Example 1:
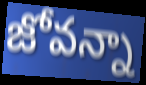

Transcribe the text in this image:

జోవన్నా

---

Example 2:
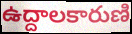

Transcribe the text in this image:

ఉద్దాలకారుణి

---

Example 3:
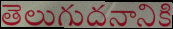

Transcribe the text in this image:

తెలుగుదనానికి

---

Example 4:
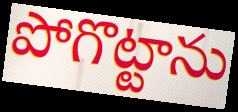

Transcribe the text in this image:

పోగొట్టాను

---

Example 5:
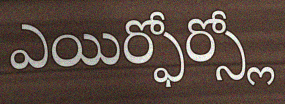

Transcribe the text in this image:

ఎయిర్ఫోర్స్లో